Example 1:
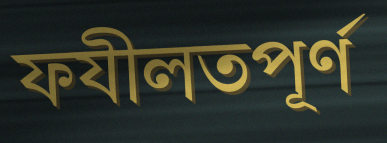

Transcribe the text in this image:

ফযীলতপূর্ণ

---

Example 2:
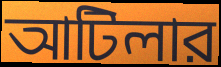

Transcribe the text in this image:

আটিলার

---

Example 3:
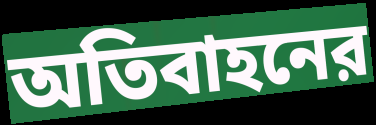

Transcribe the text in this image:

অতিবাহনের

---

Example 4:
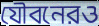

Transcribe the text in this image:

যৌবনেরও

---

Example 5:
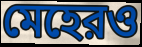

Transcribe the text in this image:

মেহেরও